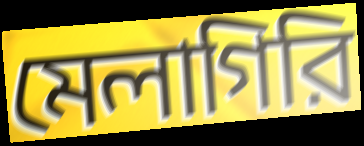
মেলাগিরি